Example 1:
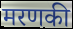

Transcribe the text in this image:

मरणकी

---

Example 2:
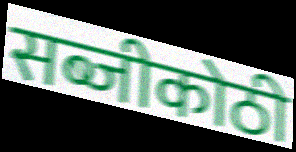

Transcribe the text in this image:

सब्जीकोठी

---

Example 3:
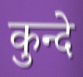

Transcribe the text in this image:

कुन्दे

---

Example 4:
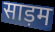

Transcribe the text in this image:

साड़म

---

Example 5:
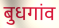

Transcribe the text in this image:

बुधगांव